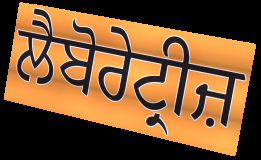
ਲੈਬੋਰੇਟ੍ਰੀਜ਼